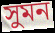
সুমন